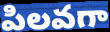
పిలవగా